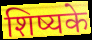
शिष्यके